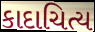
કાદાચિત્ય